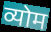
व्योम